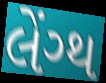
લેંગ્થ